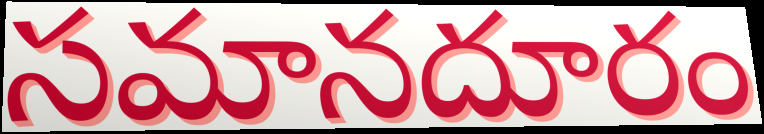
సమానదూరం